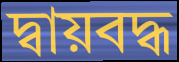
দ্বায়বদ্ধ